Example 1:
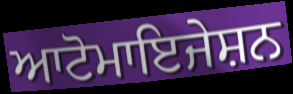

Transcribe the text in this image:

ਆਟੋਮਾਇਜੇਸ਼ਨ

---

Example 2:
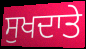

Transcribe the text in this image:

ਸੁਖਦਾਤੇ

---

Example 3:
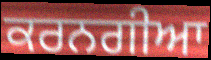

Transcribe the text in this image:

ਕਰਨਗੀਆ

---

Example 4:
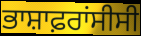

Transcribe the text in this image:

ਭਾਸ਼ਾਫ਼ਰਾਂਸੀਸੀ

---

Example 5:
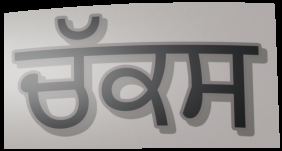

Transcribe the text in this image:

ਚੱਕਸ